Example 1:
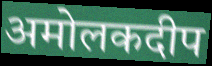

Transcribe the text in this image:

अमोलकदीप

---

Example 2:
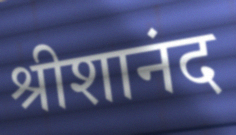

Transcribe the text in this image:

श्रीशानंद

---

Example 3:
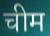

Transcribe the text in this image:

चीम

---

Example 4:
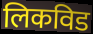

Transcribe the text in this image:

लिकविड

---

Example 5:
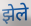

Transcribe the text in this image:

झेले